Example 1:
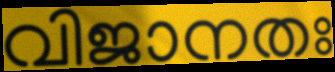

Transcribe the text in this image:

വിജാനതഃ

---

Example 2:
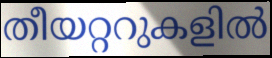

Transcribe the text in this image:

തീയറ്ററുകളിൽ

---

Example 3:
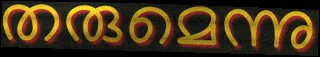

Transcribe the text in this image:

തരുമെന്നു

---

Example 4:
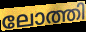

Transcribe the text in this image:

ലോത്തി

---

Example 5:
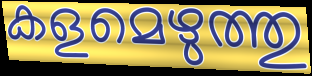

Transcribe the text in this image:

കളമെഴുത്തു